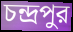
চন্দ্রপুর